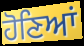
ਹੋਣਿਆਂ